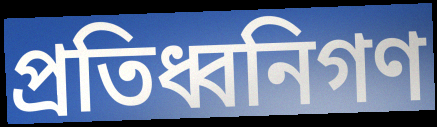
প্রতিধ্বনিগণ